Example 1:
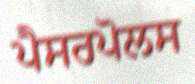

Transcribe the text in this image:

ਪੈਸਰਪੋਲਸ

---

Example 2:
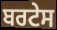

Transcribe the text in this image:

ਬਰਟੇਸ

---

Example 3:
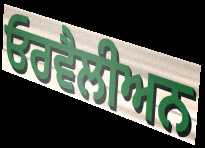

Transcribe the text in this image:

ਓਰਵੈਲੀਅਨ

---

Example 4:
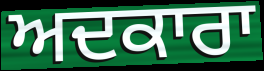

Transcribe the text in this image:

ਅਦਕਾਰਾ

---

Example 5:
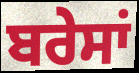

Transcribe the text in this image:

ਬਰੇਸਾਂ